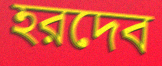
হরদেব